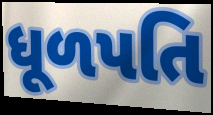
ધૂળપતિ